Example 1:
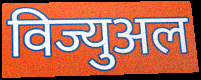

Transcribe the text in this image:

विज्युअल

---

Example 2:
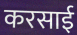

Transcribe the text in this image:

करसाई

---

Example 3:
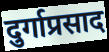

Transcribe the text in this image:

दुर्गाप्रसाद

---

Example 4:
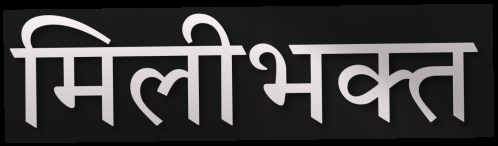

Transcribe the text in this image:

मिलीभक्त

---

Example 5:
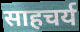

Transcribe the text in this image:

साहचर्य